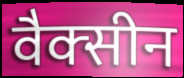
वैक्‍सीन